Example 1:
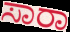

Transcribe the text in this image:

ಸಾರಾ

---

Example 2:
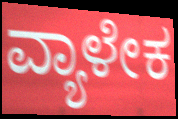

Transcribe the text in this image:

ವ್ಯಾಳೇಕ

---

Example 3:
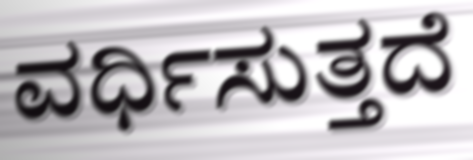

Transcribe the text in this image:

ವರ್ಧಿಸುತ್ತದೆ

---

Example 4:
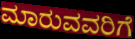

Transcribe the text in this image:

ಮಾರುವವರಿಗೆ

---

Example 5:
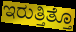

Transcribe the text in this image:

ಇರುತ್ತಿತ್ತೊ